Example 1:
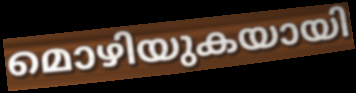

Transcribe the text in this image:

മൊഴിയുകയായി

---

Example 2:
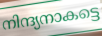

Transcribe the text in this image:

നിന്ദ്യനാകട്ടെ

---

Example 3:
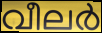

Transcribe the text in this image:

വീലർ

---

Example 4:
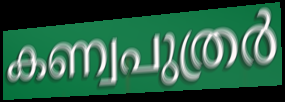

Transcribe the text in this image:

കണ്വപുത്രർ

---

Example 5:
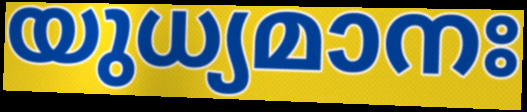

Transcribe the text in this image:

യുധ്യമാനഃ